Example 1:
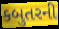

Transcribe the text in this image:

કબુતરની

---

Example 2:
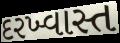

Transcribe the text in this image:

દરખ્વાસ્ત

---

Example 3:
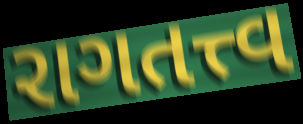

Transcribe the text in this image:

રાગતત્ત્વ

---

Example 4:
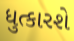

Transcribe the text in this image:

ધુત્કારશે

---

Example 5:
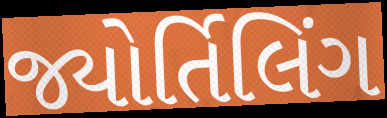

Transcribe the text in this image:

જ્યોર્તિલિંગ